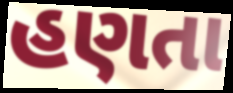
હણતા